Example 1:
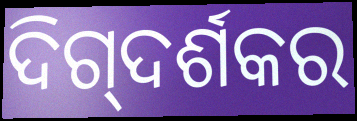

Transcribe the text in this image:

ଦିଗ୍‌ଦର୍ଶକର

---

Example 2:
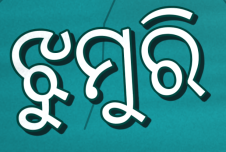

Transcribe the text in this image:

ଝୁମୁରି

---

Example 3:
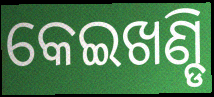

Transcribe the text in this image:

କେଇଖଣ୍ଡି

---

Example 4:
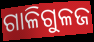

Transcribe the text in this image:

ଗାଳିଗୁଳଜ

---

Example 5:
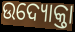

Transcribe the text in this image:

ଉଦ୍ୟୋକ୍ତା